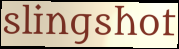
slingshot